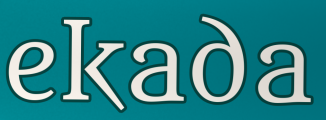
ekada